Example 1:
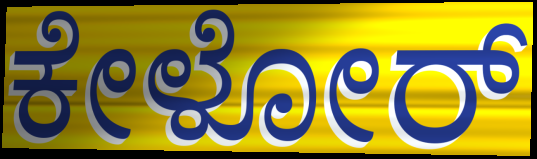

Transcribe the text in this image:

ಕೇಳೋರ್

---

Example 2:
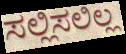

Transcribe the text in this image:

ಸಲ್ಲಿಸಲಿಲ್ಲ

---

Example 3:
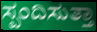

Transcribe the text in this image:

ಸ್ಪಂದಿಸುತ್ತಾ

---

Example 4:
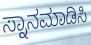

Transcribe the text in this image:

ಸ್ನಾನಮಾಡಿಸಿ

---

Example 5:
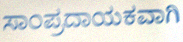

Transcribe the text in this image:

ಸಾಂಪ್ರದಾಯಕವಾಗಿ